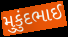
મુકુંદભાઈ